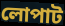
লোপাট